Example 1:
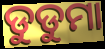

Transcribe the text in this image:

ଡୁଡୁମା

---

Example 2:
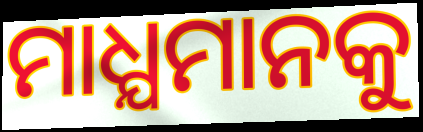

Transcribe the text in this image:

ମାଧ୍ଯମାନକୁ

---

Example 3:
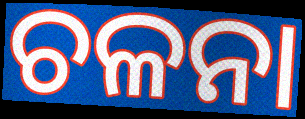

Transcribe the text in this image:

ଚଳନା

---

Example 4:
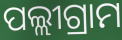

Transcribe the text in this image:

ପଲ୍ଲୀଗ୍ରାମ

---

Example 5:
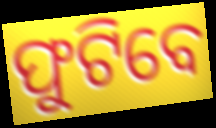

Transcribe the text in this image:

ଫୁଟିବେ